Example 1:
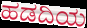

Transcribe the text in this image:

ಹಡದಿಯ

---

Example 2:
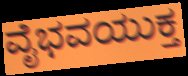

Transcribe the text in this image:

ವೈಭವಯುಕ್ತ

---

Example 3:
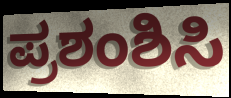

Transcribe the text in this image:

ಪ್ರಶಂಶಿಸಿ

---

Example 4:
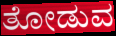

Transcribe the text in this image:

ತೋಡುವ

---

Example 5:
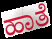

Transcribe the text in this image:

ಹಾತೆ